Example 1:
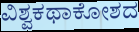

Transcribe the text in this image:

ವಿಶ್ವಕಥಾಕೋಶದ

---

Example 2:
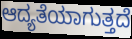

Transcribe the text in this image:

ಆದ್ಯತೆಯಾಗುತ್ತದೆ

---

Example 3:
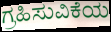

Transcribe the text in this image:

ಗ್ರಹಿಸುವಿಕೆಯ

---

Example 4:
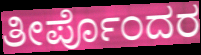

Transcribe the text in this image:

ತೀರ್ಪೊಂದರ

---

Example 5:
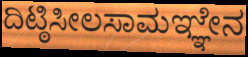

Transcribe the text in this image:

ದಿಟ್ಠಿಸೀಲಸಾಮಞ್ಞೇನ